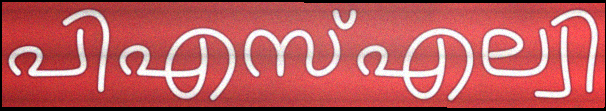
പിഎസ്എല്വി